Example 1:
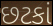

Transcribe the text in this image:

છટકાં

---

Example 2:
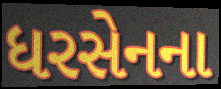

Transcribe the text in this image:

ધરસેનના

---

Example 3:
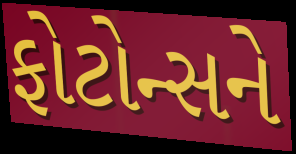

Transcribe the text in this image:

ફોટોન્સને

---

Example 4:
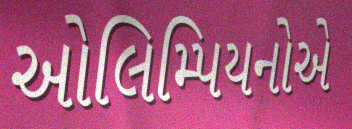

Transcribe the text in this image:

ઓલિમ્પિયનોએ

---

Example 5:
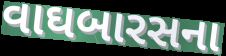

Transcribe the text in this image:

વાઘબારસના